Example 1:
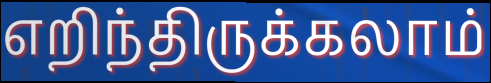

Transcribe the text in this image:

எறிந்திருக்கலாம்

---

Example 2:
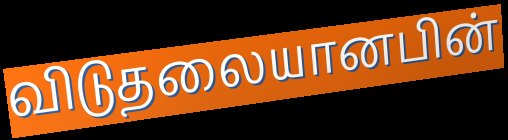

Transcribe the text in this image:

விடுதலையானபின்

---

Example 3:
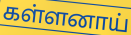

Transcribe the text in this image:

கள்ளனாய்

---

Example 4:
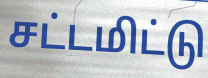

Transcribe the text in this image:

சட்டமிட்டு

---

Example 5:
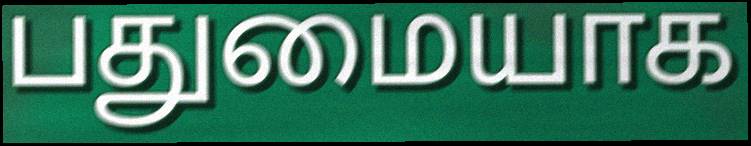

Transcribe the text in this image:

பதுமையாக